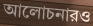
আলোচনারও